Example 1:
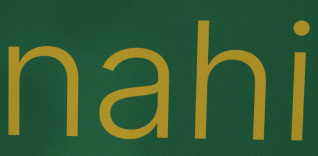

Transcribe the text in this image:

nahi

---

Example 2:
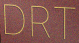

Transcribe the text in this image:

DRT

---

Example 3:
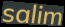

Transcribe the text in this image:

salim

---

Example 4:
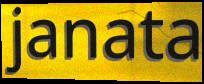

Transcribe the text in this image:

janata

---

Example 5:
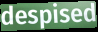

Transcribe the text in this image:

despised